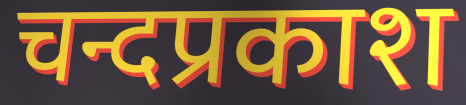
चन्दप्रकाश